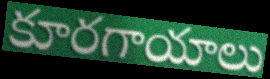
కూరగాయాలు